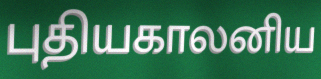
புதியகாலனிய